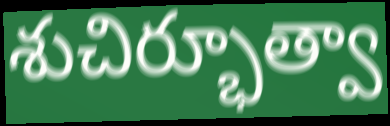
శుచిర్భూత్వా